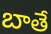
బాతే